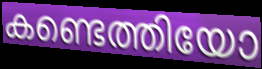
കണ്ടെത്തിയോ